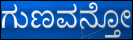
ಗುಣವನ್ತೋ